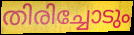
തിരിച്ചോടും